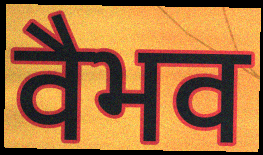
वैभव